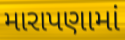
મારાપણામાં